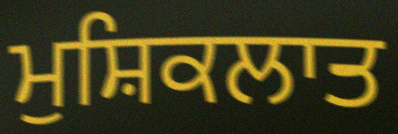
ਮੁਸ਼ਿਕਲਾਤ